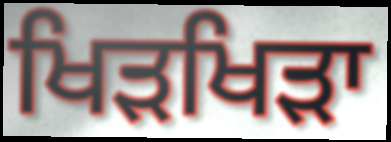
ਖਿੜਖਿੜਾ